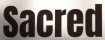
Sacred